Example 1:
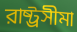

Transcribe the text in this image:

রাষ্ট্রসীমা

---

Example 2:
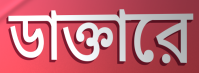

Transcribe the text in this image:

ডাক্তারে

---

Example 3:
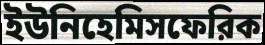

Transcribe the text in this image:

ইউনিহেমিসফেরিক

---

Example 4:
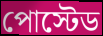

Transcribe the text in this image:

পোস্টেড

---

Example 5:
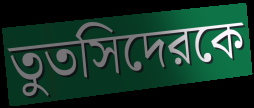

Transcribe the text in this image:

তুতসিদেরকে